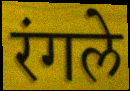
रंगले